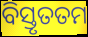
ବିସ୍ତୃତତମ